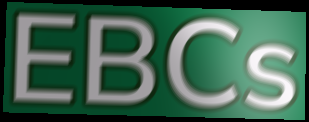
EBCs